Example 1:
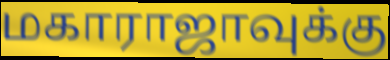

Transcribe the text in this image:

மகாராஜாவுக்கு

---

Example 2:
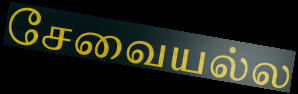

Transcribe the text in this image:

சேவையல்ல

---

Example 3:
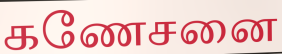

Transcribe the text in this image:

கணேசனை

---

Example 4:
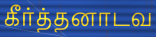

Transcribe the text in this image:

கீர்த்தனாடவ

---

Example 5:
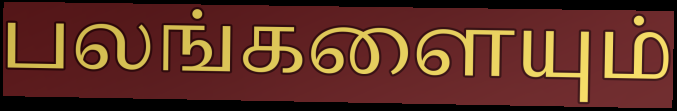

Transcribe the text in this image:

பலங்களையும்